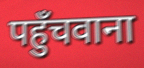
पहुँचवाना